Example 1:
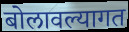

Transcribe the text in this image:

बोलावल्यागत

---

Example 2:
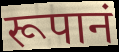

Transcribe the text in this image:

रूपानं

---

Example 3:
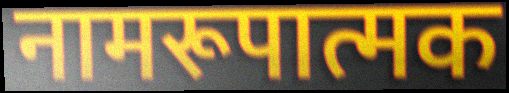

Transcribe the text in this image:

नामरूपात्मक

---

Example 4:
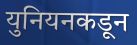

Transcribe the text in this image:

युनियनकडून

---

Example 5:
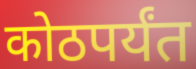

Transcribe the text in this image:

कोठपर्यंत